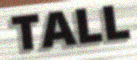
TALL